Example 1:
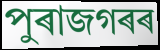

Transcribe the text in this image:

পুৰাজগৰৰ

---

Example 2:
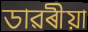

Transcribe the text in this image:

ডাৱৰীয়া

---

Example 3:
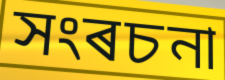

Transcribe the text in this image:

সংৰচনা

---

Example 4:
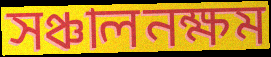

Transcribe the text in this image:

সঞ্চালনক্ষম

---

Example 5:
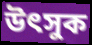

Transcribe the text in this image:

উৎসুক